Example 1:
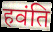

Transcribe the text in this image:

हवंति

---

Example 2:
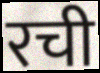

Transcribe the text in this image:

रची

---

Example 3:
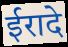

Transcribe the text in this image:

ईरादे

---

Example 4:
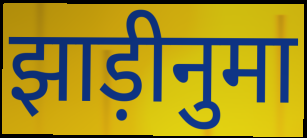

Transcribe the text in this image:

झाड़ीनुमा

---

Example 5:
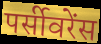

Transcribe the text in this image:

पर्सीवरेंस